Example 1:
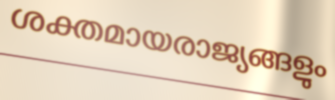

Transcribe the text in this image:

ശക്തമായരാജ്യങ്ങളും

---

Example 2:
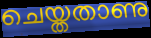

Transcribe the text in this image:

ചെയ്തതാണു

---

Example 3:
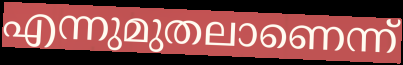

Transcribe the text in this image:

എന്നുമുതലാണെന്ന്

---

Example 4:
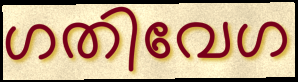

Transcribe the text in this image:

ഗതിവേഗ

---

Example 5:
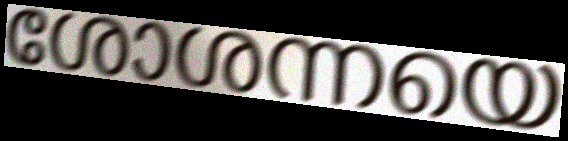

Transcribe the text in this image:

ശോശന്നയെ